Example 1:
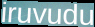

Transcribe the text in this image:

iruvudu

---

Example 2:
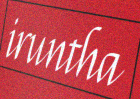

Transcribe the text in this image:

iruntha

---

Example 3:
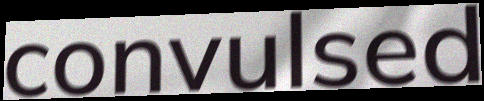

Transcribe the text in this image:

convulsed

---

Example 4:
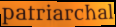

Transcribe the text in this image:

patriarchal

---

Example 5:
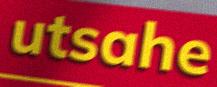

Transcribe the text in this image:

utsahe